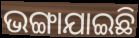
ଭଙ୍ଗାଯାଇଛି